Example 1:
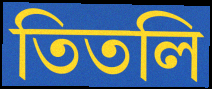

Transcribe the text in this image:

তিতলি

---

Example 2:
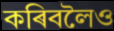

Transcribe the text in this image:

কৰিবলৈও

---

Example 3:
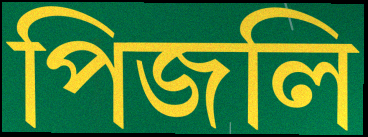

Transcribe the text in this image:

পিজলি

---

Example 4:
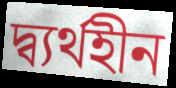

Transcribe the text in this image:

দ্ব্যৰ্থহীন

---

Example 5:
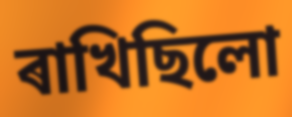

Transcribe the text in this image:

ৰাখিছিলো